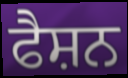
ਫੈਸ਼ਨ